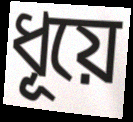
ধূয়ে